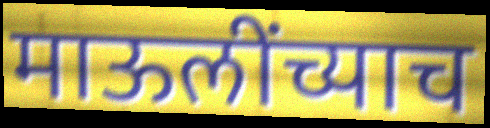
माऊलींच्याच